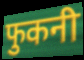
फुकनी